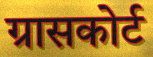
ग्रासकोर्ट